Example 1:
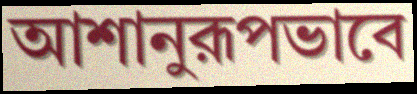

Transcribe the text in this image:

আশানুরূপভাবে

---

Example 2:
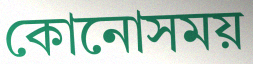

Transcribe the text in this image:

কোনোসময়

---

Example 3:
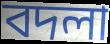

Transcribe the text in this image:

বদলা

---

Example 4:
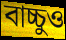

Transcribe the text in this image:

বাচ্চুও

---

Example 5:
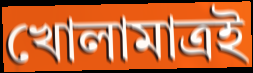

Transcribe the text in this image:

খোলামাত্রই